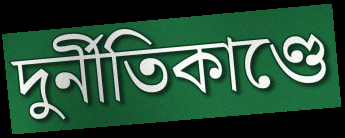
দুর্নীতিকাণ্ডে